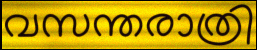
വസന്തരാത്രി